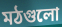
মঠগুলো